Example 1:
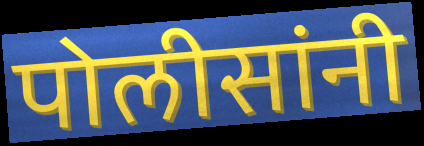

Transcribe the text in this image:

पोलीसांनी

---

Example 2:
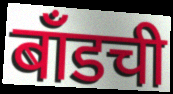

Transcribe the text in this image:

बाँडची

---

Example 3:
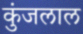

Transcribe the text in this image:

कुंजलाल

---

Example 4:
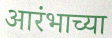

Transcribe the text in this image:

आरंभाच्या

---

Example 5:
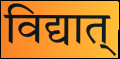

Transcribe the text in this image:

विद्यात्